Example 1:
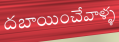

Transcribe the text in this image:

దబాయించేవాళ్ళ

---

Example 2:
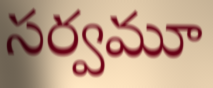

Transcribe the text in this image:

సర్వమూ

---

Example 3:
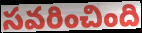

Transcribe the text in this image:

సవరించింది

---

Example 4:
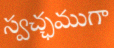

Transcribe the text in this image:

స్వచ్ఛముగా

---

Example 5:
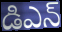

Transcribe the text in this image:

డిఎన్